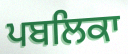
ਪਬਲਿਕਾ